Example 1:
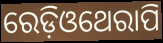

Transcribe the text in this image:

ରେଡ଼ିଓଥେରାପି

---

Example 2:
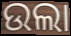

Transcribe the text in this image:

ଉଲା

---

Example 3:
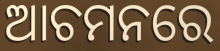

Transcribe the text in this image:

ଆଚମନରେ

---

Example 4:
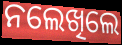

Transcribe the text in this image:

ନଲେଖିଲେ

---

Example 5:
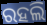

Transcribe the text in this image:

ରହଲି